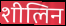
शीलिन